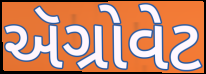
ઍગ્રોવેટ